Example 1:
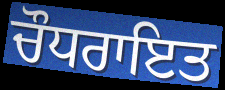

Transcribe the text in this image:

ਚੌਧਰਾਇਤ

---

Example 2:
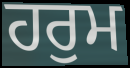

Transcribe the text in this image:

ਹਰੁਮ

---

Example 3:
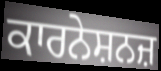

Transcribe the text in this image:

ਕਾਰਨੇਸ਼ਨਜ਼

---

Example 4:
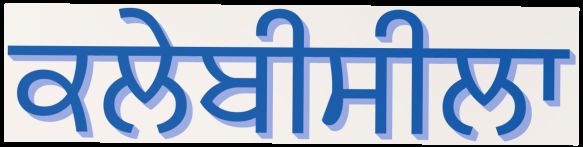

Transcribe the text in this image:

ਕਲੇਬੀਸੀਲਾ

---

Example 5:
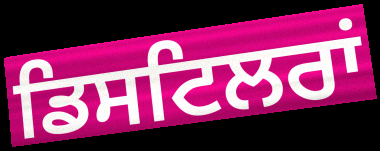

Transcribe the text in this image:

ਡਿਸਟਿਲਰਾਂ